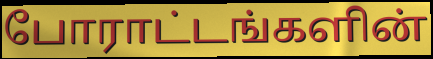
போராட்டங்களின்